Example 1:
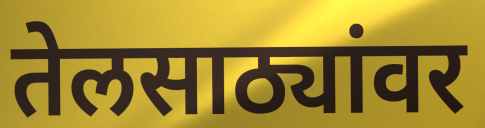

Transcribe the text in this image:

तेलसाठ्यांवर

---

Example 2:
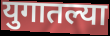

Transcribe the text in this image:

युगातल्या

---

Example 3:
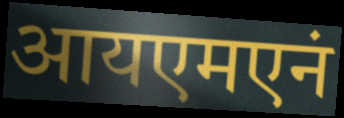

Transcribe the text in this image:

आयएमएनं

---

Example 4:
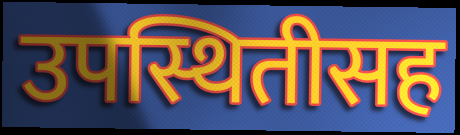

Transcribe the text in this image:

उपस्थितीसह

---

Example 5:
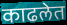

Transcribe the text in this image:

काढलेत